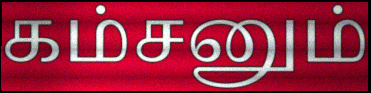
கம்சனும்